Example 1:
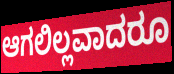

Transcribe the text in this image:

ಆಗಲಿಲ್ಲವಾದರೂ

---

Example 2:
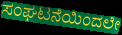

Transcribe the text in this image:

ಸಂಘಟನೆಯಿಂದಲೇ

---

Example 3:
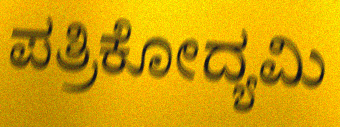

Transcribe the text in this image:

ಪತ್ರಿಕೋದ್ಯಮಿ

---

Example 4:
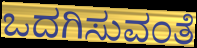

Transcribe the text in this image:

ಒದಗಿಸುವಂತೆ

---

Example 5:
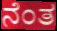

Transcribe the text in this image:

ನೆಂತ